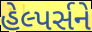
હેલ્પર્સને